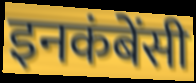
इनकंबेंसी